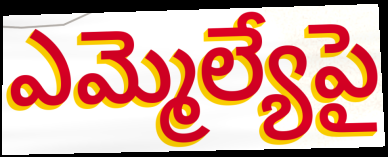
ఎమ్మెల్యేపై